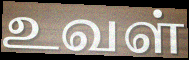
உவள்